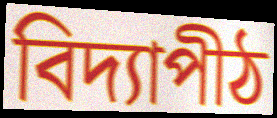
বিদ্যাপীঠ